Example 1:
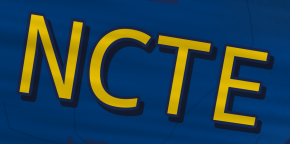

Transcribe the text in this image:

NCTE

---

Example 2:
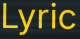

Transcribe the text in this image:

Lyric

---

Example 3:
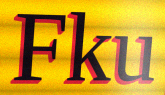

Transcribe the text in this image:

Fku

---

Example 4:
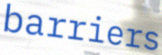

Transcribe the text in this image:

barriers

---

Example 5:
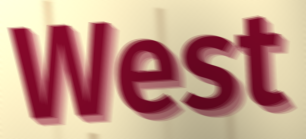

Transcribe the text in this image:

West